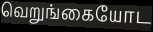
வெறுங்கையோட